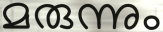
മരുന്നും